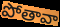
పోతావా